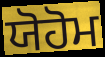
ਯੋਹੋਮ